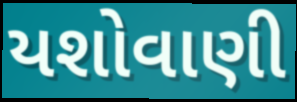
યશોવાણી